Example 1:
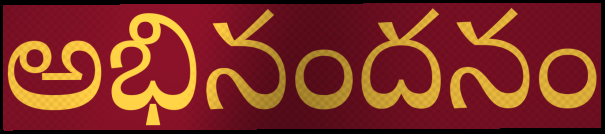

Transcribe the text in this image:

అభినందనం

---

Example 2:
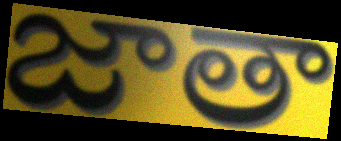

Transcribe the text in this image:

జాతా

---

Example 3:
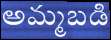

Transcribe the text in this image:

అమ్మబడి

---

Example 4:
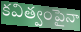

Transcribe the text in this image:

కవిత్వంపైనా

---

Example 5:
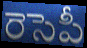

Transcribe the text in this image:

రెసెపీ